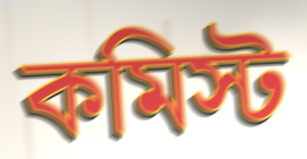
কমিস্ট